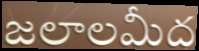
జలాలమీద